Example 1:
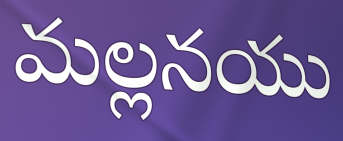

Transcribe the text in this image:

మల్లనయు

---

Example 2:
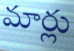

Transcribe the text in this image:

మార్లు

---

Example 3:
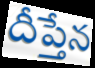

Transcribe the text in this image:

దీప్తేన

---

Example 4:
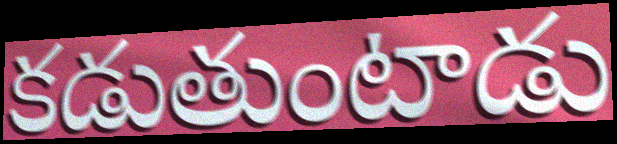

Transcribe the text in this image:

కడుతుంటాడు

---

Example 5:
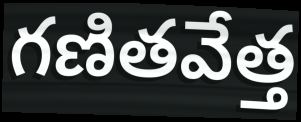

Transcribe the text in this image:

గణితవేత్త